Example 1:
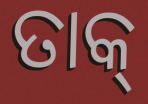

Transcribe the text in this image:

ତାକ୍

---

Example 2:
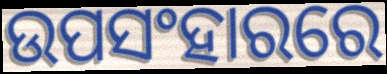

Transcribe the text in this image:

ଉପସଂହାରରେ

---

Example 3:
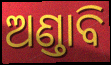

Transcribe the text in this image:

ଅଣ୍ଡାବି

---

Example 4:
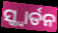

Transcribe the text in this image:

ସ୍କ୍ବାର୍ଡନ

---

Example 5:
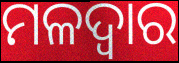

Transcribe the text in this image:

ମଳଦ୍ୱାର